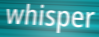
whisper